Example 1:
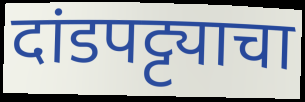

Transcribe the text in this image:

दांडपट्ट्याचा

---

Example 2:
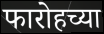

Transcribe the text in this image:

फारोहच्या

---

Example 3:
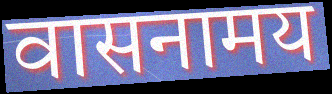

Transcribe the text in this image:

वासनामय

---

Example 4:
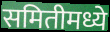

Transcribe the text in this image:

समितीमध्ये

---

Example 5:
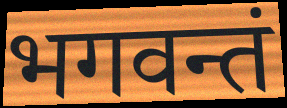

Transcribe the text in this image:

भगवन्तं